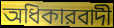
অধিকারবাদী